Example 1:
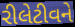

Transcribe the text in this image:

રીલેટીવને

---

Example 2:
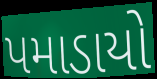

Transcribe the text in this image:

પમાડાયો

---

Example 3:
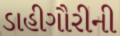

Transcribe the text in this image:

ડાહીગૌરીની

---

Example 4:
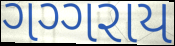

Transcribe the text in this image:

ગગ્ગરાય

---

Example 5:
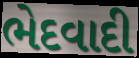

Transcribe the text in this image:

ભેદવાદી